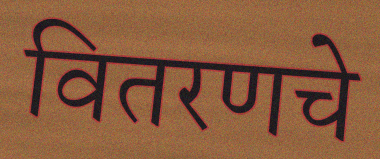
वितरणचे